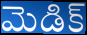
మెడిక్